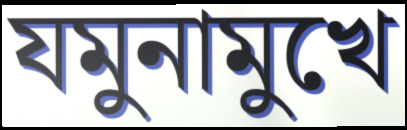
যমুনামুখে